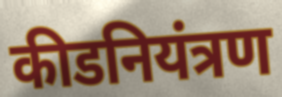
कीडनियंत्रण